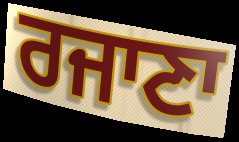
ਰਜਾਣਾ